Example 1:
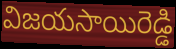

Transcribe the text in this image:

విజయసాయిరెడ్డి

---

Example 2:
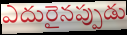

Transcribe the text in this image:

ఎదురైనప్పుడు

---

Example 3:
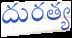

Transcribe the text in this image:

దురత్య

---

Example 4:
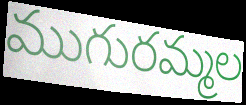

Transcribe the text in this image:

ముగురమ్మల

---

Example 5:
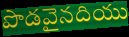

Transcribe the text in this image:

పొడవైనదియు